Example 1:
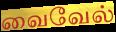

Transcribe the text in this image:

வைவேல்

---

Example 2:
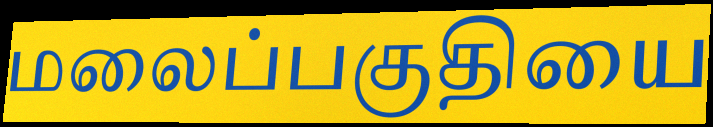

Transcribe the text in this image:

மலைப்பகுதியை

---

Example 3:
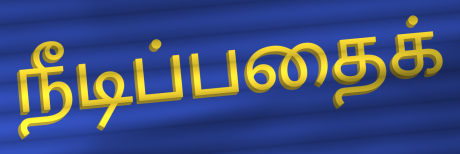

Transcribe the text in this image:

நீடிப்பதைக்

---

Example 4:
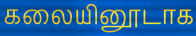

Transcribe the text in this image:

கலையினூடாக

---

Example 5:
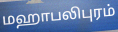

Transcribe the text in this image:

மஹாபலிபுரம்